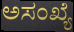
ಅಸಂಖ್ಯೆ